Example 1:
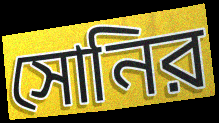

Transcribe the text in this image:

সোনির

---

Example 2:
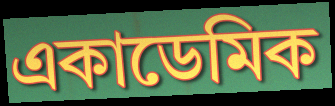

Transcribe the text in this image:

একাডেমিক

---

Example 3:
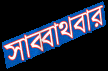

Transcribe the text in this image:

সাব্বাথবার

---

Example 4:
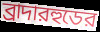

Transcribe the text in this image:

ব্রাদারহুডের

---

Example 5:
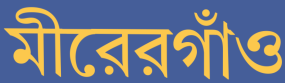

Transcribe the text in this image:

মীরেরগাঁও